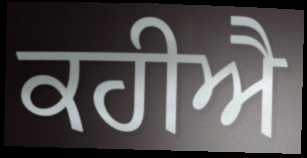
ਕਹੀਐ